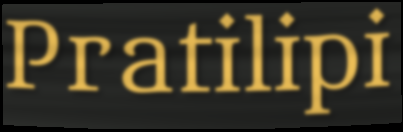
Pratilipi